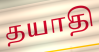
தயாதி